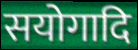
सयोगादि